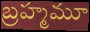
బ్రహ్మమూ